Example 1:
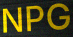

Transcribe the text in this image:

NPG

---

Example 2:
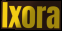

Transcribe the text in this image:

Ixora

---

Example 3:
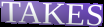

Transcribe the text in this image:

TAKES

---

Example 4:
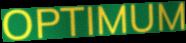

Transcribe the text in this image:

OPTIMUM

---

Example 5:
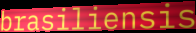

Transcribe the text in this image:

brasiliensis